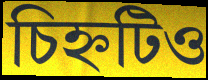
চিহ্নটিও